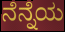
ನೆನ್ನೆಯ